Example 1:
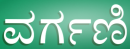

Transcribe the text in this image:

ವರ್ಗಣಿ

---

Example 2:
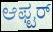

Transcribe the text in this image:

ಆಫ್ಟರ್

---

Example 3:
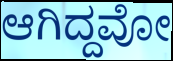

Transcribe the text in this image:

ಆಗಿದ್ದವೋ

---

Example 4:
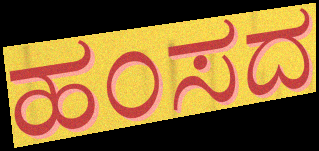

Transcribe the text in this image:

ಹಂಸದ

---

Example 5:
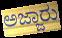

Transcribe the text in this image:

ಅಜ್ಜಾರು